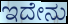
ಇದೇನು